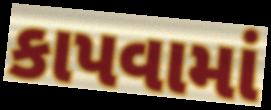
કાપવામાં